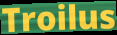
Troilus